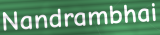
Nandrambhai